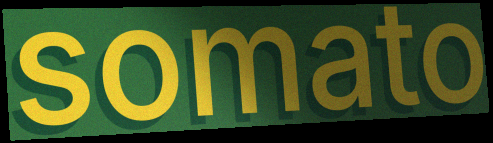
somato